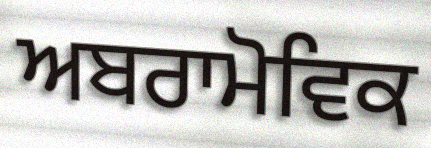
ਅਬਰਾਮੋਵਿਕ